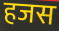
हजस